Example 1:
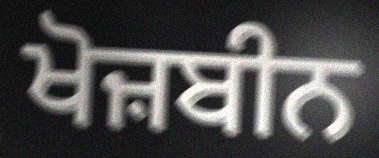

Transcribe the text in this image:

ਖੋਜ਼ਬੀਨ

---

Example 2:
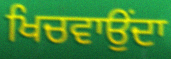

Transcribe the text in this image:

ਖਿਚਵਾਉਂਦਾ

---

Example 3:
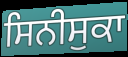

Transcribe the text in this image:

ਸਿਨੀਸੁਕਾ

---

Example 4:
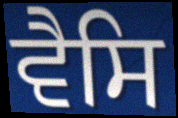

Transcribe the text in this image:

ਵੈਸਿ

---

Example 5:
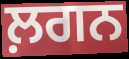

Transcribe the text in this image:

ਲ਼ਗਨ